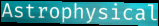
Astrophysical